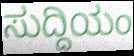
ಸುದ್ದಿಯಂ